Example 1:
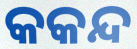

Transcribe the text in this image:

କକନ୍ଦ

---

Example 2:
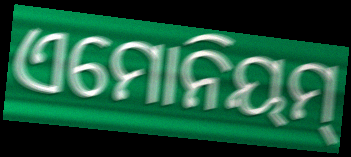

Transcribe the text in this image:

ଏମୋନିୟମ୍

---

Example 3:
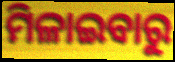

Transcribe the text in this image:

ମିଳାଇବାରୁ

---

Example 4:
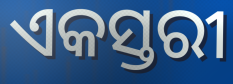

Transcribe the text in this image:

ଏକସ୍ତରୀ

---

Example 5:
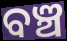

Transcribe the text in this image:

ବଞ୍ଚ